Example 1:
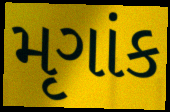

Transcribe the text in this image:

મૃગાંક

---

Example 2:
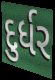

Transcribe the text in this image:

દુર્ધર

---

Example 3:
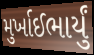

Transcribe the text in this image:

મુર્ખાઈભાર્યું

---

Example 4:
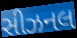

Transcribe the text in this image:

સીઝનલ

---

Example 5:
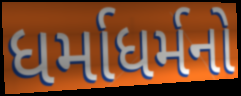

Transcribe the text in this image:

ધર્માધર્મનો